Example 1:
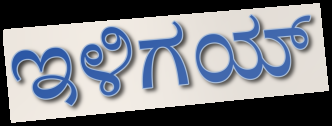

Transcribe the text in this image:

ಇಳಿಗಯ್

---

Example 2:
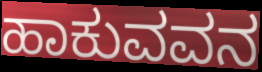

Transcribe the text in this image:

ಹಾಕುವವನ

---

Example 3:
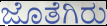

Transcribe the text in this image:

ಜೊತೆಗಿರು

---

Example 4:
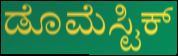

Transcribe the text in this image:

ಡೊಮೆಸ್ಟಿಕ್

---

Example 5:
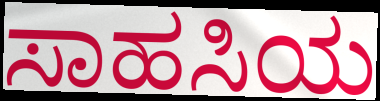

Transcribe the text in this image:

ಸಾಹಸಿಯ